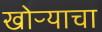
खोऱ्याचा